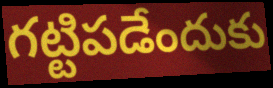
గట్టిపడేందుకు